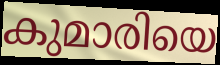
കുമാരിയെ